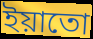
ইয়াতো